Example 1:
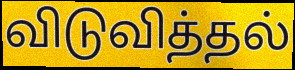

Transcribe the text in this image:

விடுவித்தல்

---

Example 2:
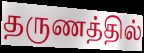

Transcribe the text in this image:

தருணத்தில்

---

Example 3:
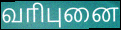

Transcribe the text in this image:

வரிபுனை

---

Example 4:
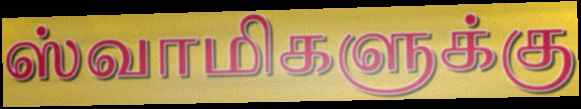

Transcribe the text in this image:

ஸ்வாமிகளுக்கு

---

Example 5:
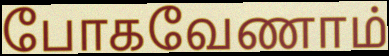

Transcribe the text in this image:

போகவேணாம்